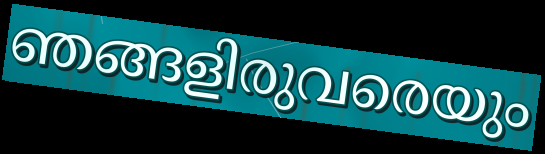
ഞങ്ങളിരുവരെയും